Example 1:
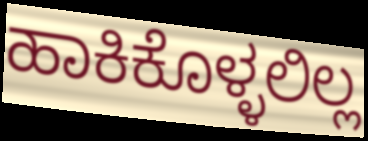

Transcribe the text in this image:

ಹಾಕಿಕೊಳ್ಳಲಿಲ್ಲ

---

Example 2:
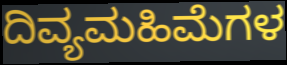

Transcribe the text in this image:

ದಿವ್ಯಮಹಿಮೆಗಳ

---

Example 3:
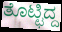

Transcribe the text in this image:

ತೊಟ್ಟಿದ್ದ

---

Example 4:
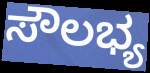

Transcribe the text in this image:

ಸೌಲಭ್ಯ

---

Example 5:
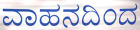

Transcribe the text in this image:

ವಾಹನದಿಂದ